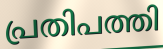
പ്രതിപത്തി